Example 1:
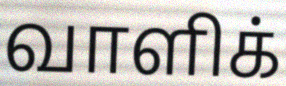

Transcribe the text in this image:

வாளிக்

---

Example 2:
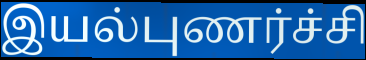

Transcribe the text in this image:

இயல்புணர்ச்சி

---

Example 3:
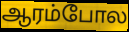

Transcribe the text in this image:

ஆரம்போல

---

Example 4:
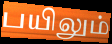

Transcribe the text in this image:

பயிலும்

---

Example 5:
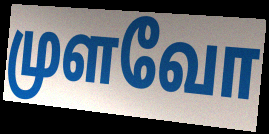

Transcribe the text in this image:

முளவோ